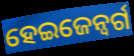
ହେଇଜେନ୍ବର୍ଗ